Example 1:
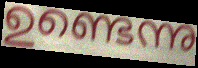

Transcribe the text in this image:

ഉണ്ടെന്നു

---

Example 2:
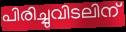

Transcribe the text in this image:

പിരിച്ചുവിടലിന്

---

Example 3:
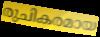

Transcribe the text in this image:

രുചികരമായ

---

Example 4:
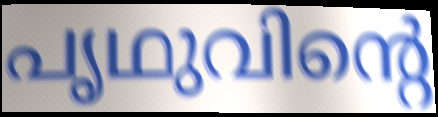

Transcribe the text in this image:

പൃഥുവിന്റെ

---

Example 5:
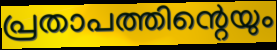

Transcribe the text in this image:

പ്രതാപത്തിന്റെയും